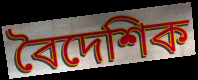
বৈদেশিক